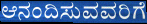
ಆನಂದಿಸುವವರಿಗೆ